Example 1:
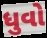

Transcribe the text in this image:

ધુવો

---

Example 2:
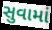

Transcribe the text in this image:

સુવામાં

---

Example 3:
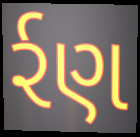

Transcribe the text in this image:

ર્રણ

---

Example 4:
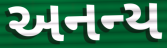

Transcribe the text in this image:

અનન્ય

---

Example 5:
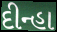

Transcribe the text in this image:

દીન્હા